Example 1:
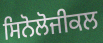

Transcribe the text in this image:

ਸਿਨੋਲੋਜੀਕਲ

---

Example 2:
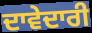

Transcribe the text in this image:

ਦਾਵੇਦਾਰੀ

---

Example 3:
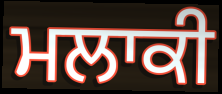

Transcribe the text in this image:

ਮਲਾਕੀ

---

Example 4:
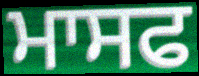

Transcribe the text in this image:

ਮਾਸਫ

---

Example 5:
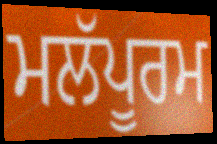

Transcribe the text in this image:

ਮਲੱਪੂਰਮ